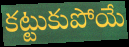
కట్టుకుపోయే